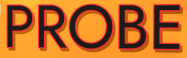
PROBE